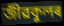
জীৱকুলৰ